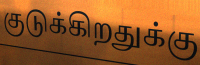
குடுக்கிறதுக்கு